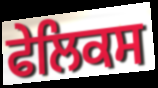
ਫੇਲਿਕਸ